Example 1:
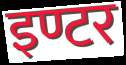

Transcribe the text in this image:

इण्टर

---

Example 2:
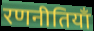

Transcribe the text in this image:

रणनीतियाँ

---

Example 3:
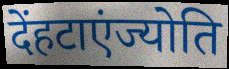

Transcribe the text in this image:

देंहटाएंज्योति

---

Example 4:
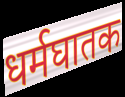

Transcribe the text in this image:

धर्मघातक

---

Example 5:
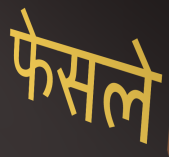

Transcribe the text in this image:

फेसले